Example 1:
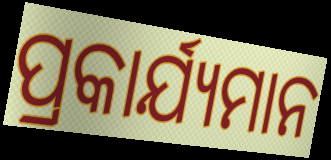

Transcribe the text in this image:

ପ୍ରକାର୍ଯ୍ୟମାନ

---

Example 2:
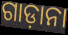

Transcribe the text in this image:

ଗାଡ଼ାନା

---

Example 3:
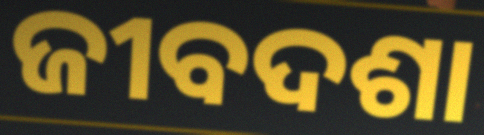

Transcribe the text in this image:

ଜୀବଦଶା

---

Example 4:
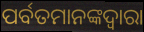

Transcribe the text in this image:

ପର୍ବତମାନଙ୍କଦ୍ଵାରା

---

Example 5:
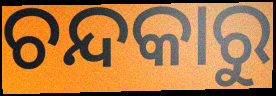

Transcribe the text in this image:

ଚନ୍ଦକାରୁ